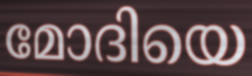
മോദിയെ